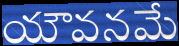
యౌవనమే